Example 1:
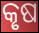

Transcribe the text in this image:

କୃଷ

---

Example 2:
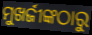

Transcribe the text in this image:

ମୁଖର୍ଜୀଙ୍କଠାରୁ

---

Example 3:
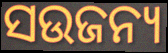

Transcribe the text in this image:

ସଉଜନ୍ୟ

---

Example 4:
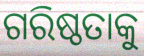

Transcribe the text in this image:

ଗରିଷ୍ଠତାକୁ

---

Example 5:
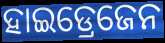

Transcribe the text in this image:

ହାଇଡ୍ରେଜେନ